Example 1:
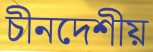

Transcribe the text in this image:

চীনদেশীয়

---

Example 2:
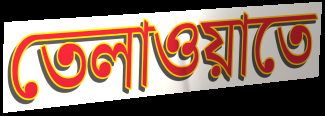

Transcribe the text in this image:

তেলাওয়াতে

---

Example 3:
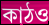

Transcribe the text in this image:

কাঠও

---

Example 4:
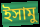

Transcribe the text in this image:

ইসামু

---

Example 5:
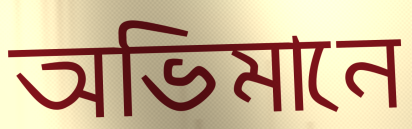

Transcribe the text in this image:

অভিমানে